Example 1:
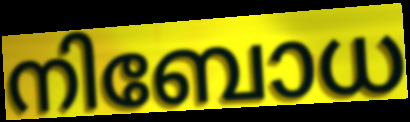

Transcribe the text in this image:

നിബോധ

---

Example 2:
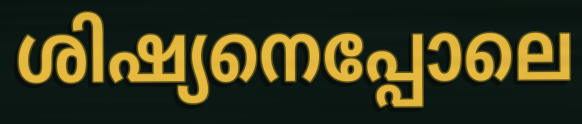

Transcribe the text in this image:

ശിഷ്യനെപ്പോലെ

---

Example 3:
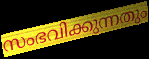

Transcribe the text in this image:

സംഭവിക്കുന്നതും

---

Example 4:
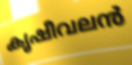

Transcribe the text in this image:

കൃഷീവലൻ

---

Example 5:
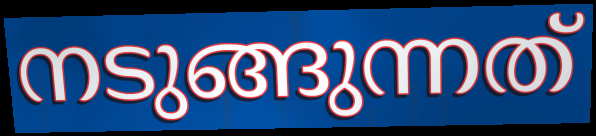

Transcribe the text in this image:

നടുങ്ങുന്നത്